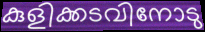
കുളിക്കടവിനോടു